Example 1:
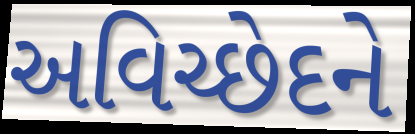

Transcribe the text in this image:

અવિચ્છેદને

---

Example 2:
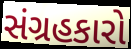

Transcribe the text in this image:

સંગ્રહકારો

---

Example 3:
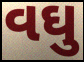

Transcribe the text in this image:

વઘુ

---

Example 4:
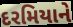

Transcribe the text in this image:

દરમિયાને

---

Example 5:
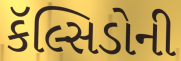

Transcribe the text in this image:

કૅલ્સિડોની